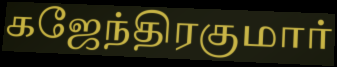
கஜேந்திரகுமார்